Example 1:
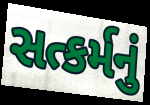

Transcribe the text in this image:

સત્કર્મનું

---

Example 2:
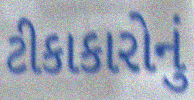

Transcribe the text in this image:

ટીકાકારોનું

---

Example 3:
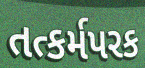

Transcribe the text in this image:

તત્કર્મપરક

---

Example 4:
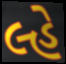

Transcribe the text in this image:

લ્હે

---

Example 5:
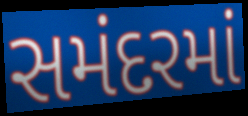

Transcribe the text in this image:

સમંદરમાં